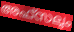
അഫ്സലും